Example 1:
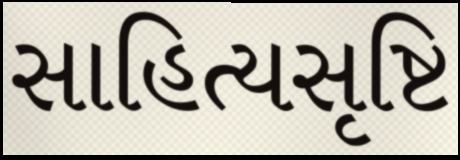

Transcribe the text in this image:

સાહિત્યસૃષ્ટિ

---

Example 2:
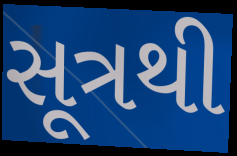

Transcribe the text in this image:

સૂત્રથી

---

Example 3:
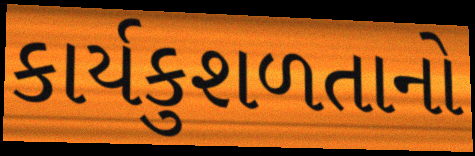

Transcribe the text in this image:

કાર્યકુશળતાનો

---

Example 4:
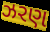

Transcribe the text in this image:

ઝરણ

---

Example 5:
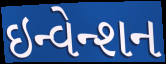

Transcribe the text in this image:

ઇન્વેન્શન